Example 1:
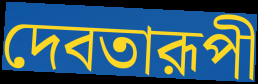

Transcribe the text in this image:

দেবতারূপী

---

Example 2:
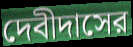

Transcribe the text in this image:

দেবীদাসের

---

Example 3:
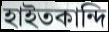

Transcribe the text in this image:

হাইতকান্দি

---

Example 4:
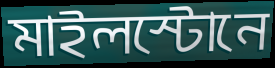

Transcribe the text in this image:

মাইলস্টোনে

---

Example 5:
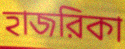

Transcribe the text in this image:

হাজরিকা